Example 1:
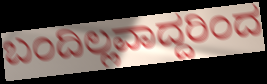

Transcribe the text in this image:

ಬಂದಿಲ್ಲವಾದ್ದರಿಂದ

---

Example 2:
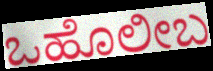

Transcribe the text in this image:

ಒಹೊಲೀಬ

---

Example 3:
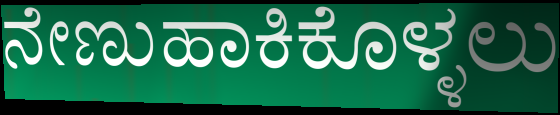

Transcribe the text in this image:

ನೇಣುಹಾಕಿಕೊಳ್ಳಲು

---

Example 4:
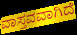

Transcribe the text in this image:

ವಾಸ್ತವವಾಗಿದೆ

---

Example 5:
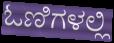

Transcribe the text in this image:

ಓಣಿಗಳಲ್ಲಿ